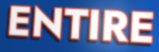
ENTIRE